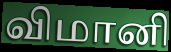
விமானி